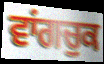
ਵਾਂਗਚੁਕ